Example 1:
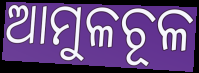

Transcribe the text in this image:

ଆମୁଳଚୂଳ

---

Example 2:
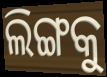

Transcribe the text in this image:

ଲିଙ୍ଗକୁ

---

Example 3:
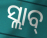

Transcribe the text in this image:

ସ୍ଲାବ୍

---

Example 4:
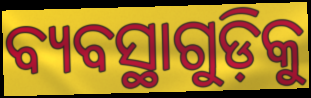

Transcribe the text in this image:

ବ୍ୟବସ୍ଥାଗୁଡ଼ିକୁ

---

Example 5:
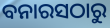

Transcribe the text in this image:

ବନାରସଠାରୁ